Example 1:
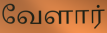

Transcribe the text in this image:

வேளார்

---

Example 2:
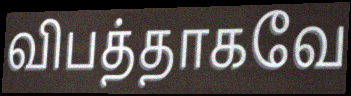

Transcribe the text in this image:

விபத்தாகவே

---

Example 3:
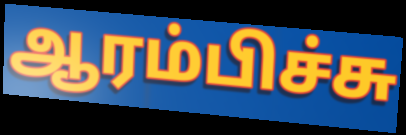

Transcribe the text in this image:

ஆரம்பிச்சு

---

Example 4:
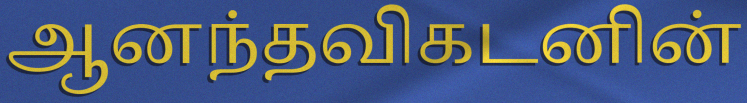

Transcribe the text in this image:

ஆனந்தவிகடனின்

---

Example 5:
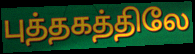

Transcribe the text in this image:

புத்தகத்திலே